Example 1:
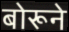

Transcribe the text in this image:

बोरूने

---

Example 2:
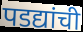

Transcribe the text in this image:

पडद्यांची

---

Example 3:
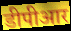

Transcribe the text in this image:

डीपीआर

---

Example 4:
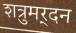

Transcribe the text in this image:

शत्रुमर्दन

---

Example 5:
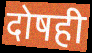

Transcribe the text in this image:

दोषही